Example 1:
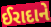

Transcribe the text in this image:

ઈરાદાને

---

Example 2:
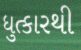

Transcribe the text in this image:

ધુત્કારથી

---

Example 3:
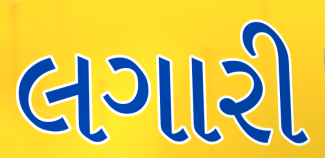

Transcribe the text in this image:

લગારી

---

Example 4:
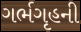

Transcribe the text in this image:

ગર્ભગૃહની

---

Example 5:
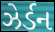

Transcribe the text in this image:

ઝેર્ડન